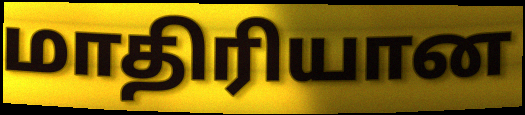
மாதிரியான